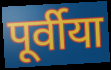
पूर्वीया